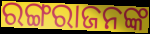
ରଙ୍ଗରାଜନଙ୍କ